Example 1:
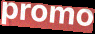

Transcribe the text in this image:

promo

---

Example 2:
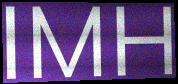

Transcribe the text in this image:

IMH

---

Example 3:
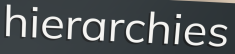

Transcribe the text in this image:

hierarchies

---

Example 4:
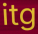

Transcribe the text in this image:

itg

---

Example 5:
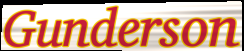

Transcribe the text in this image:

Gunderson